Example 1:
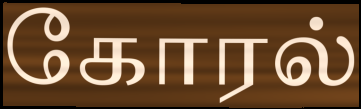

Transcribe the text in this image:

கோரல்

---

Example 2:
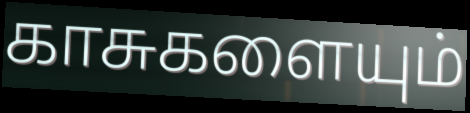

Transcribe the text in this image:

காசுகளையும்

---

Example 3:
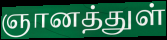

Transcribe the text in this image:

ஞானத்துள்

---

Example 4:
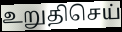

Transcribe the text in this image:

உறுதிசெய்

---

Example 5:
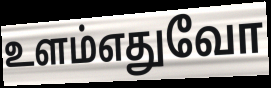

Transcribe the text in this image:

உளம்எதுவோ